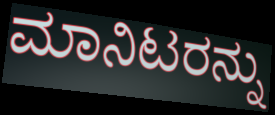
ಮಾನಿಟರನ್ನು